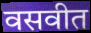
वसवीत